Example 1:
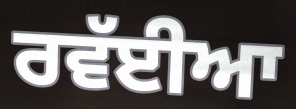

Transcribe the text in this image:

ਰਵੱਈਆ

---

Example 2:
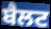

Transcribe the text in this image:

ਬੈਲਟ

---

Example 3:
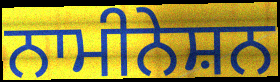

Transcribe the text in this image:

ਨਾਮੀਨੇਸ਼ਨ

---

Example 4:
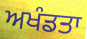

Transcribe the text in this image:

ਅਖੰਡਤਾ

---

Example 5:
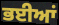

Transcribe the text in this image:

ਭਈਆਂ